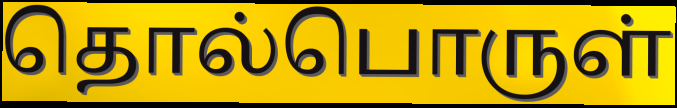
தொல்பொருள்